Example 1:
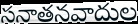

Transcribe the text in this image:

సనాతనవాదుల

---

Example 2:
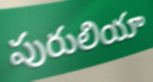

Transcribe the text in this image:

పురులియా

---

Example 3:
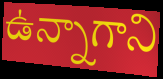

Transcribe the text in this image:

ఉన్నాగాని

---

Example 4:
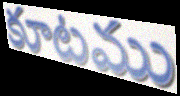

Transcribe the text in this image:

కూటము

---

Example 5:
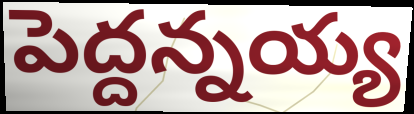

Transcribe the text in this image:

పెద్దన్నయ్య